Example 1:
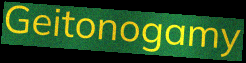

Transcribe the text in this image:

Geitonogamy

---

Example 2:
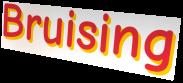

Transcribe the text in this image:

Bruising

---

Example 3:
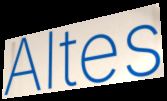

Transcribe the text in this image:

Altes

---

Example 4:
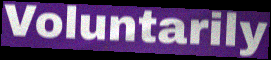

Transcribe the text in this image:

Voluntarily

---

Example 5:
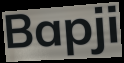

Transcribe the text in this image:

Bapji